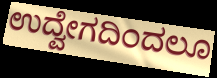
ಉದ್ವೇಗದಿಂದಲೂ